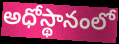
అధోస్థానంలో